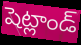
షెట్లాండ్